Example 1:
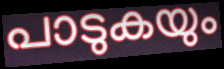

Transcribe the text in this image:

പാടുകയും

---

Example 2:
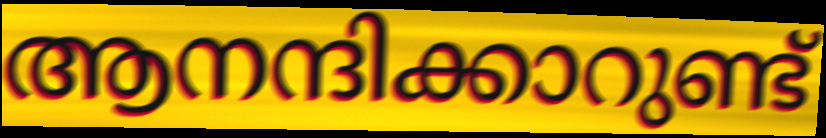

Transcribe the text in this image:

ആനന്ദിക്കാറുണ്ട്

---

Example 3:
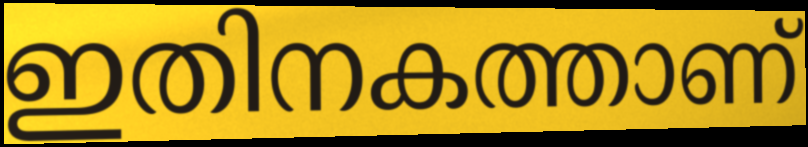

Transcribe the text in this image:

ഇതിനകത്താണ്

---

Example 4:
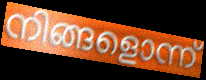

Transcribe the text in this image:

നിങ്ങളൊന്ന്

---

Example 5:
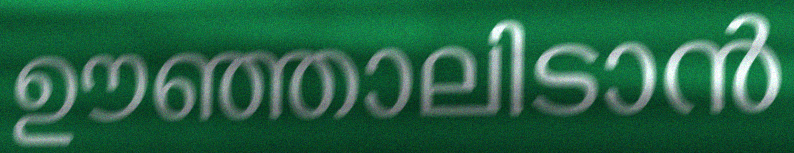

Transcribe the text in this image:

ഊഞ്ഞാലിടാൻ